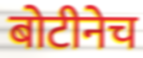
बोटीनेच